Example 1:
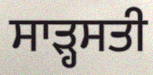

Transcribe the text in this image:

ਸਾੜ੍ਹਸਤੀ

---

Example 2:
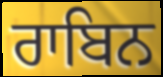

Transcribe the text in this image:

ਰਾਬਿਨ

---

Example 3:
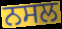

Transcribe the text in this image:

ਨਸਲ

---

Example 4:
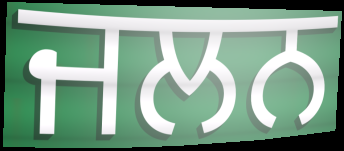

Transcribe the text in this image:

ਜਲਨ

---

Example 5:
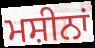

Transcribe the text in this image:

ਮਸ਼ੀਨਾਂ